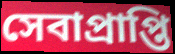
সেবাপ্রাপ্তি